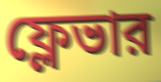
ফ্লেভার